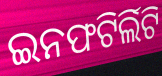
ଇନଫଟିର୍ଲିଟି